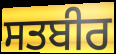
ਸਤਬੀਰ